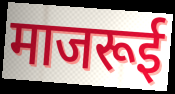
माजरूई